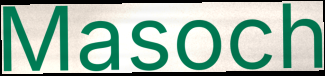
Masoch